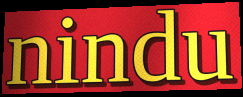
nindu